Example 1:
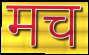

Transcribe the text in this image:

मच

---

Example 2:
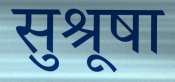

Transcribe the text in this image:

सुश्रूषा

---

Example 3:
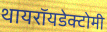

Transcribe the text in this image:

थायरॉयडेक्टोमी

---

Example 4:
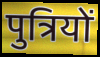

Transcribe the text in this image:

पुत्रियों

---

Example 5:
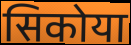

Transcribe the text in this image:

सिकोया